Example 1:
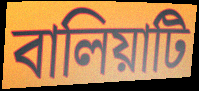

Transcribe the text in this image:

বালিয়াটি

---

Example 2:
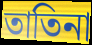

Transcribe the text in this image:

তাতিনা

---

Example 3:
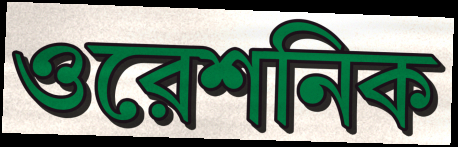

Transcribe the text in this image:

ওরেশনিক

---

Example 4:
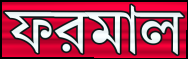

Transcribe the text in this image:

ফরমাল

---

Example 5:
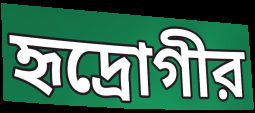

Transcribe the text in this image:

হৃদ্রোগীর